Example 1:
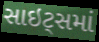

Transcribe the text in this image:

સાઇટ્સમાં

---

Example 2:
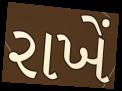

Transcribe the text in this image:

રાખેં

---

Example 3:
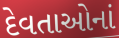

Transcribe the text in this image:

દેવતાઓનાં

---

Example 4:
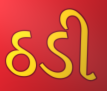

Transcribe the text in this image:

ઠડી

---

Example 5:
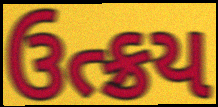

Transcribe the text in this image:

ઉત્ક્રય